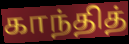
காந்தித்